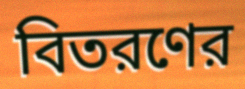
বিতরণের